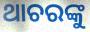
ଥାଚରଙ୍କୁ